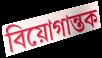
বিয়োগান্তক